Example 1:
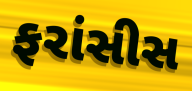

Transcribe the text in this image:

ફરાંસીસ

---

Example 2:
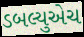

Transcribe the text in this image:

ડબલ્યુએચ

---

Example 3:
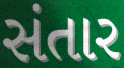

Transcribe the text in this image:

સંતાર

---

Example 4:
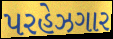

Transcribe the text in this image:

પરહેઝગાર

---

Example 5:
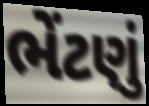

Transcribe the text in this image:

ભેંટણું